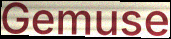
Gemuse